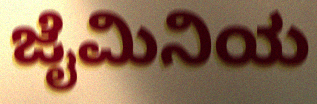
ಜೈಮಿನಿಯ